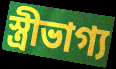
স্ত্রীভাগ্য